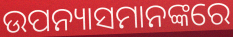
ଉପନ୍ୟାସମାନଙ୍କରେ